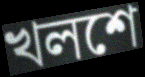
খলশে